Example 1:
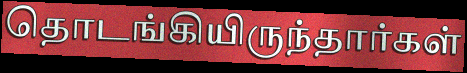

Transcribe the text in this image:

தொடங்கியிருந்தார்கள்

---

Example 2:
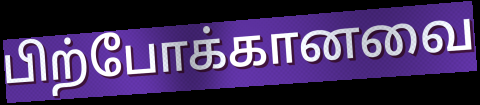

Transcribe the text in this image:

பிற்போக்கானவை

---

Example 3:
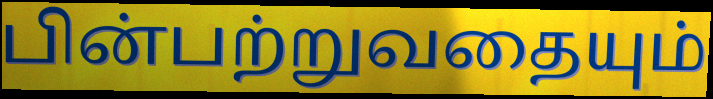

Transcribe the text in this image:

பின்பற்றுவதையும்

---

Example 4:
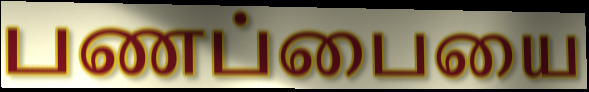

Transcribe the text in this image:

பணப்பையை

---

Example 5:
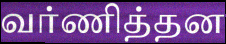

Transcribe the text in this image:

வர்ணித்தன